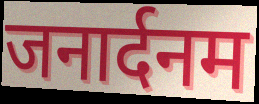
जनार्दनम